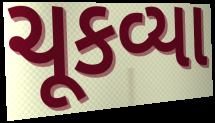
ચૂકવ્યા